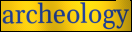
archeology